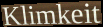
Klimkeit